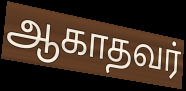
ஆகாதவர்